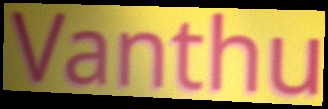
Vanthu